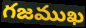
గజముఖ